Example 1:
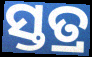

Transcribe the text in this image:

ସ୍ତତ୍ର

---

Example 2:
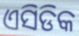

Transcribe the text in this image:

ଏସିଡିକ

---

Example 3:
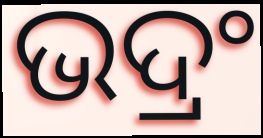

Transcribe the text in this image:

ଭଦ୍ରଂ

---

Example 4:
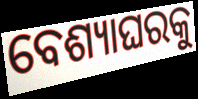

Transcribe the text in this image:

ବେଶ୍ୟାଘରକୁ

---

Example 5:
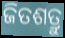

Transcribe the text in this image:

ଜିତଶତ୍ରୁ